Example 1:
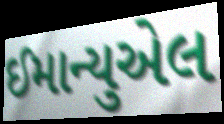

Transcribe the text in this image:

ઈમાન્યુએલ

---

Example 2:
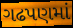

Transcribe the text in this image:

ગઢપણમાં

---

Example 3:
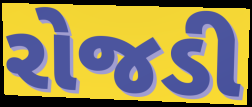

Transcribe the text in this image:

રોજડી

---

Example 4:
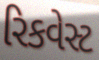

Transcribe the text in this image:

રિકવેસ્ટ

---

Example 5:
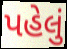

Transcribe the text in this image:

પહેલું